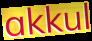
akkul